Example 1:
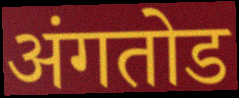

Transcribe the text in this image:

अंगतोड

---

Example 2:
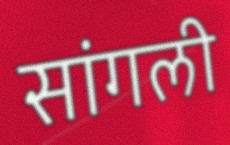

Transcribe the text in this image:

सांगली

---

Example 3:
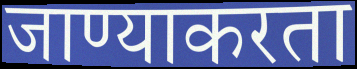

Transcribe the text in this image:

जाण्याकरता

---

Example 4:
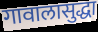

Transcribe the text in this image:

गावालासुद्धा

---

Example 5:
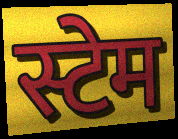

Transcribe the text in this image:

स्टेम